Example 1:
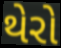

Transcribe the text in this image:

થેરો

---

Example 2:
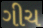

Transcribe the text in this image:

ગીચ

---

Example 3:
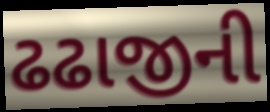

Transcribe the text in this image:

ઢઢાજીની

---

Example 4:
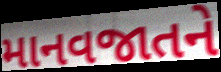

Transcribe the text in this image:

માનવજાતને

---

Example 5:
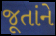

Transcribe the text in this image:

જૂતાંને